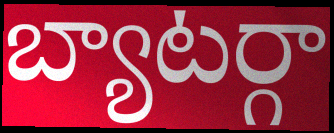
బ్యాటర్గా